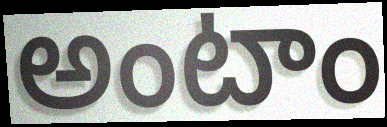
అంటాం